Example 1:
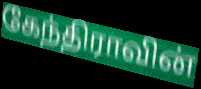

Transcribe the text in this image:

கேந்திராவின்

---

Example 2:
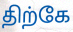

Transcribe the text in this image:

திற்கே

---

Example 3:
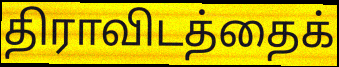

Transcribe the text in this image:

திராவிடத்தைக்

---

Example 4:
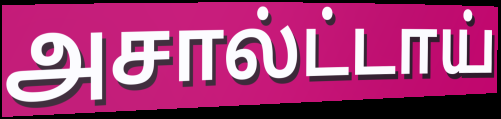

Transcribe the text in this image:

அசால்ட்டாய்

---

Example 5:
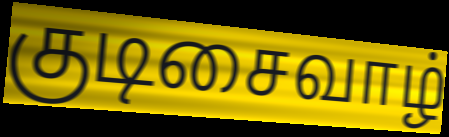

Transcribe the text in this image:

குடிசைவாழ்